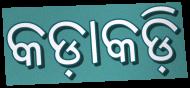
କଡ଼ାକଡ଼ି